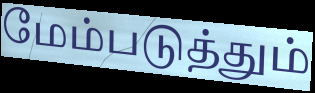
மேம்படுத்தும்